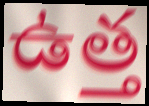
ఉత్త